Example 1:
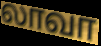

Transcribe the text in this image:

லாவா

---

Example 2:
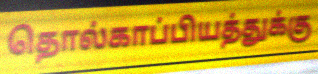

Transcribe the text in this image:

தொல்காப்பியத்துக்கு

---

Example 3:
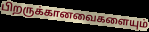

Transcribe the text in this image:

பிறருக்கானவைகளையும்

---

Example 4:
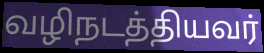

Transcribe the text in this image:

வழிநடத்தியவர்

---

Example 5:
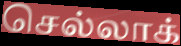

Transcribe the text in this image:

செல்லாக்